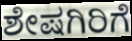
ಶೇಷಗಿರಿಗೆ